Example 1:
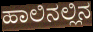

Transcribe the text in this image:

ಹಾಲಿನಲ್ಲಿನ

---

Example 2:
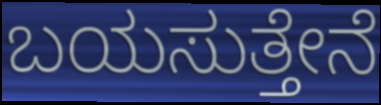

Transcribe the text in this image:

ಬಯಸುತ್ತೇನೆ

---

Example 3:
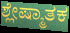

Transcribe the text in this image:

ಶ್ಲೇಷ್ಮಾತಕ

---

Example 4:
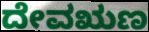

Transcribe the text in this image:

ದೇವಋಣ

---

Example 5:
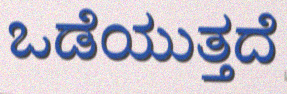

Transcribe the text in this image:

ಒಡೆಯುತ್ತದೆ